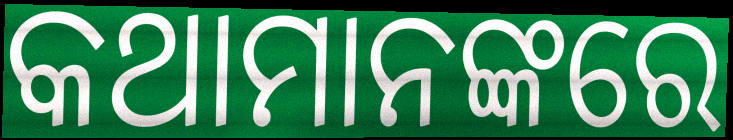
କଥାମାନଙ୍କରେ